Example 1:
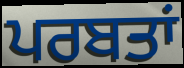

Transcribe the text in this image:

ਪਰਬਤਾਂ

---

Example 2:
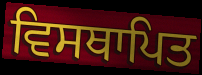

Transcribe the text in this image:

ਵਿਸਥਾਪਿਤ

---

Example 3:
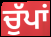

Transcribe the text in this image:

ਚੁੱਪਾਂ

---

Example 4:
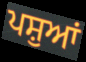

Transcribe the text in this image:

ਪਸ਼ੁਆਂ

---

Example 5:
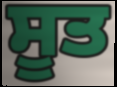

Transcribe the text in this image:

ਸੂਤ